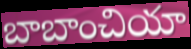
బాబాంచియా